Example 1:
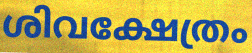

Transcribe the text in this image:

ശിവക്ഷേത്രം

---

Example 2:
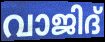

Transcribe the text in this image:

വാജിദ്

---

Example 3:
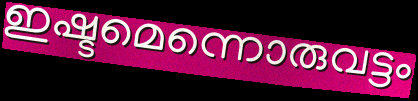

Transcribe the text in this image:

ഇഷ്ടമെന്നൊരുവട്ടം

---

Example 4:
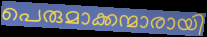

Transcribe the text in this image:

പെരുമാക്കന്മാരായി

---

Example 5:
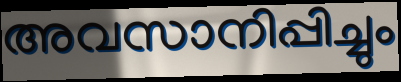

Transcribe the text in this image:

അവസാനിപ്പിച്ചും